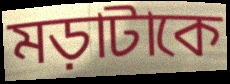
মড়াটাকে